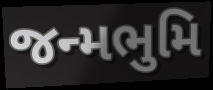
જન્મભુમિ